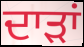
ਦਾੜਾਂ